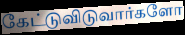
கேட்டுவிடுவார்களோ